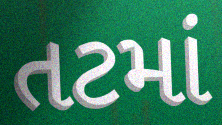
તટમાં